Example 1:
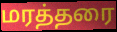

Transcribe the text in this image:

மரத்தரை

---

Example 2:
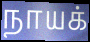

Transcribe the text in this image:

நாயக்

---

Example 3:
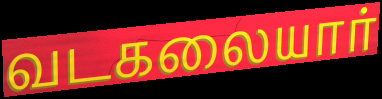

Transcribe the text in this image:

வடகலையார்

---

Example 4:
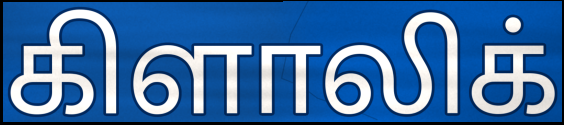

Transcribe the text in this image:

கிளாலிக்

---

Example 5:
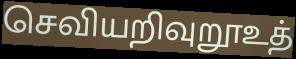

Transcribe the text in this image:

செவியறிவுறூஉத்